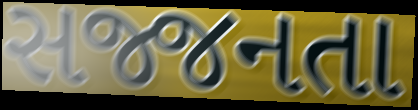
સજ્જનતા